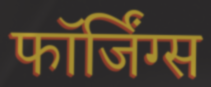
फॉर्जिंग्स